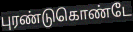
புரண்டுகொண்டே